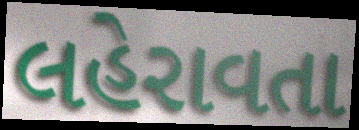
લહેરાવતા